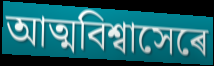
আত্মবিশ্বাসেৰে